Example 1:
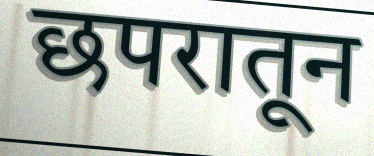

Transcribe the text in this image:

छपरातून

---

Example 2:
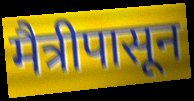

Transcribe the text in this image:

मैत्रीपासून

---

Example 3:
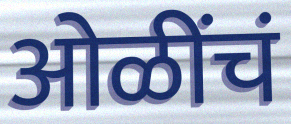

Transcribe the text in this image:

ओळींचं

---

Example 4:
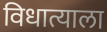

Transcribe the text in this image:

विधात्याला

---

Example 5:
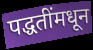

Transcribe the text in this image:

पद्धतींमधून